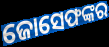
ଜୋସେଫଙ୍କର